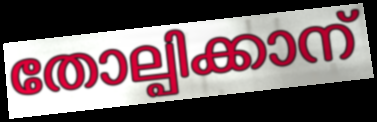
തോല്പിക്കാന്